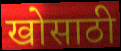
खोसाठी